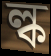
ল্ক